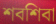
শবশিবা